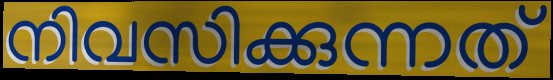
നിവസിക്കുന്നത്